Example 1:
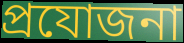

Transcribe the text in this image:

প্রযোজনা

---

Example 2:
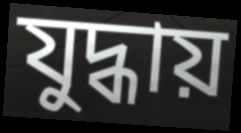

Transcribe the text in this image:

যুদ্ধায়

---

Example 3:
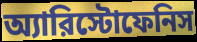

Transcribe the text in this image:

অ্যারিস্টোফেনিস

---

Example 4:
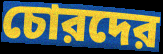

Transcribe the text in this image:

চোরদের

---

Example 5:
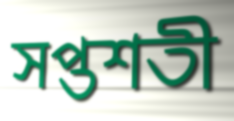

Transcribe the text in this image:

সপ্তশতী